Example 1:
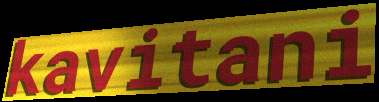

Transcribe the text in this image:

kavitani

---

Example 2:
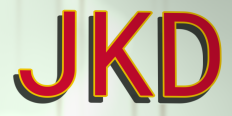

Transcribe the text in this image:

JKD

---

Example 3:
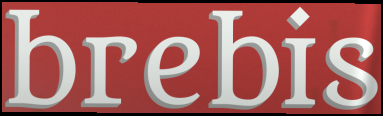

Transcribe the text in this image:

brebis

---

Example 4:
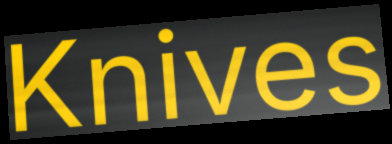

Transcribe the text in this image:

Knives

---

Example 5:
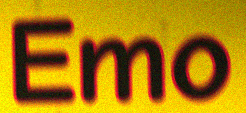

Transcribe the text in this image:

Emo